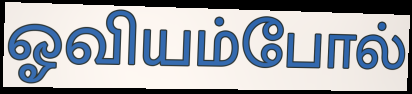
ஓவியம்போல்